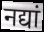
नद्यां